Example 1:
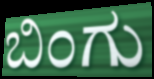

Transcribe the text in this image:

ಬಿಂಗು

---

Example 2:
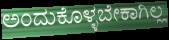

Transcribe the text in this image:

ಅಂದುಕೊಳ್ಳಬೇಕಾಗಿಲ್ಲ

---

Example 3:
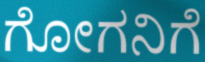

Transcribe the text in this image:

ಗೋಗನಿಗೆ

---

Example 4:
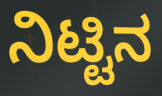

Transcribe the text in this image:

ನಿಟ್ಟಿನ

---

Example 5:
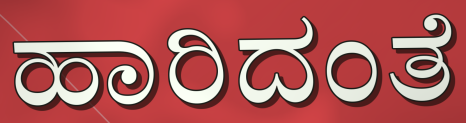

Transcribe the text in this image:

ಹಾರಿದಂತೆ